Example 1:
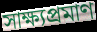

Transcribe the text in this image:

সাক্ষ্যপ্রমাণ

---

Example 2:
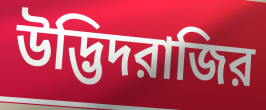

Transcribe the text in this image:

উদ্ভিদরাজির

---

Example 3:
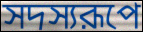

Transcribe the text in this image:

সদস্যরূপে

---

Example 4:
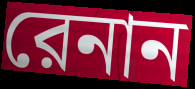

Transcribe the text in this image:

রেনান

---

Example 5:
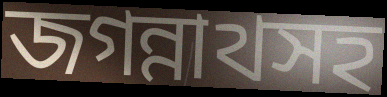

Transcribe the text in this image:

জগন্নাথসহ